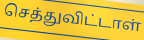
செத்துவிட்டாள்